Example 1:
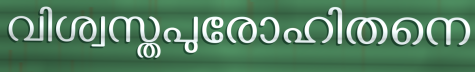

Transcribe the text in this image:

വിശ്വസ്തപുരോഹിതനെ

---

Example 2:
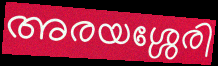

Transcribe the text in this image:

അരയശ്ശേരി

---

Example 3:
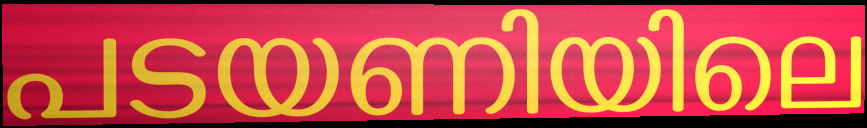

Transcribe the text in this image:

പടയണിയിലെ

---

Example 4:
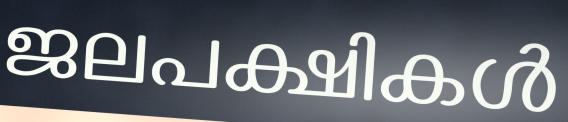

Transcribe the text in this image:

ജലപക്ഷികൾ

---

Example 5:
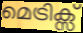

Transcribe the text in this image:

മെട്രിക്സ്